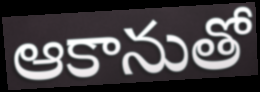
ఆకానుతో